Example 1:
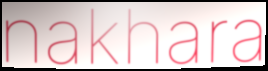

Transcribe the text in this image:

nakhara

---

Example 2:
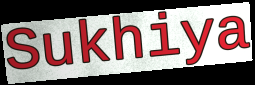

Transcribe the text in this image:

Sukhiya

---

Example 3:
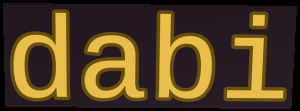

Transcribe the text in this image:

dabi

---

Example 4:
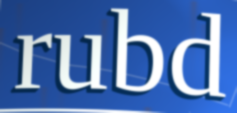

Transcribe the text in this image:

rubd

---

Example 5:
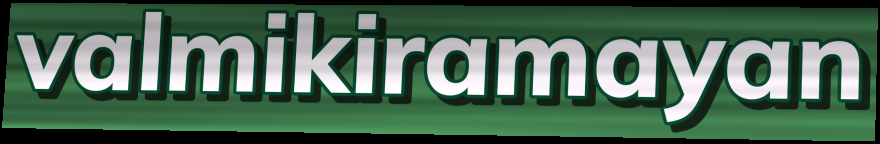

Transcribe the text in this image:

valmikiramayan